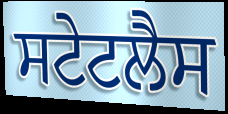
ਸਟੇਟਲੈਸ